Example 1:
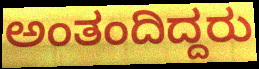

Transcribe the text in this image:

ಅಂತಂದಿದ್ದರು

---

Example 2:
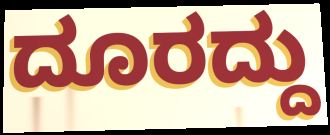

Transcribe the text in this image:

ದೂರದ್ದು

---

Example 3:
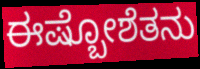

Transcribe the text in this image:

ಈಷ್ಬೋಶೆತನು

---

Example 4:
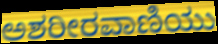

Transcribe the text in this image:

ಅಶರೀರವಾಣಿಯು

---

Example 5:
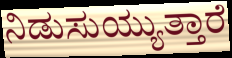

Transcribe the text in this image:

ನಿಡುಸುಯ್ಯುತ್ತಾರೆ